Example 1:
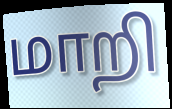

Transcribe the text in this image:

மாறி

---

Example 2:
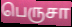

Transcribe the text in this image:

பெருசா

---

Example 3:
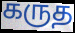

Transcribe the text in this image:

கருத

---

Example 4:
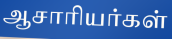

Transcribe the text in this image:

ஆசாரியர்கள்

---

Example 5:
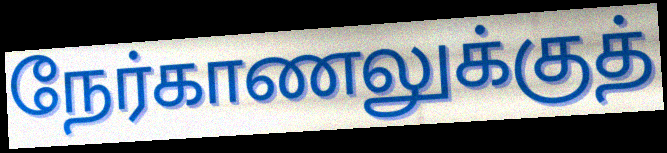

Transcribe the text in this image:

நேர்காணலுக்குத்